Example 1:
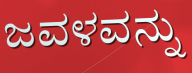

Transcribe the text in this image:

ಜವಳವನ್ನು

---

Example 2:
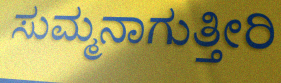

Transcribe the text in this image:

ಸುಮ್ಮನಾಗುತ್ತೀರಿ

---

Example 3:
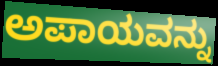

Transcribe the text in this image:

ಅಪಾಯವನ್ನು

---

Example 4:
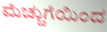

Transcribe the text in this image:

ಮೆಚ್ಚುಗೆಯಿಂದ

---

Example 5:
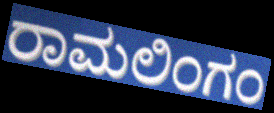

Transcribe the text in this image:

ರಾಮಲಿಂಗಂ